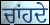
ਚਾਂਹਦੇ